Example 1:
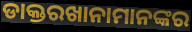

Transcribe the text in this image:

ଡାକ୍ତରଖାନାମାନଙ୍କର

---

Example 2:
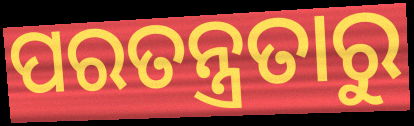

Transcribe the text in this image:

ପରତନ୍ତ୍ରତାରୁ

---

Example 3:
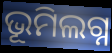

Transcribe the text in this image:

ଭୂମିଲଗ୍ନ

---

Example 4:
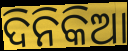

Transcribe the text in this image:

ଦିନିକିଆ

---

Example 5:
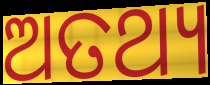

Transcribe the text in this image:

ଅତଥ୍ୟ